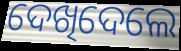
ଦେଖିଦେଲେ